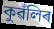
কুৱঁলিৰ